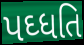
પઘ્ધતિ